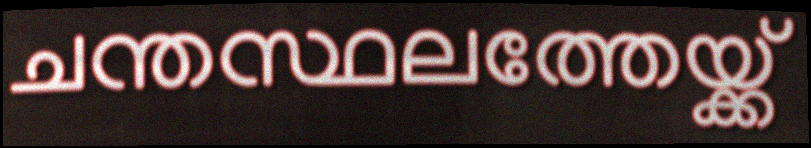
ചന്തസ്ഥലത്തേയ്ക്ക്